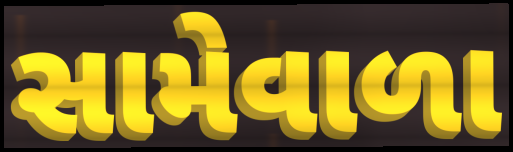
સામેવાળા